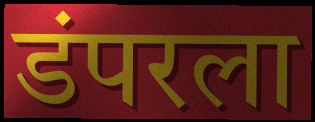
डंपरला